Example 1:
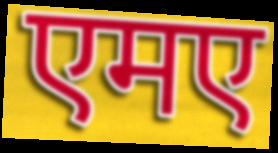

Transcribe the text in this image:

एमए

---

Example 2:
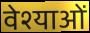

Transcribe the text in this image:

वेश्याओं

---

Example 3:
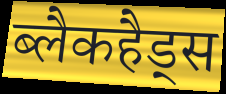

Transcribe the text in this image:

ब्लैकहैड्स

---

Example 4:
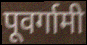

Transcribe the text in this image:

पूवर्गामी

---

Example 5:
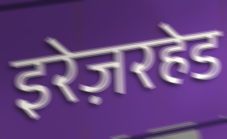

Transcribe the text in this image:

इरेज़रहेड